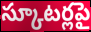
స్కూటర్లపై